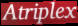
Atriplex